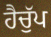
ਹੈਚੁੱਪ